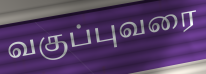
வகுப்புவரை